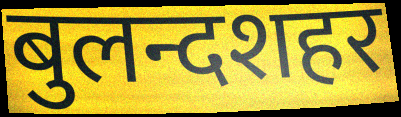
बुलन्दशहर